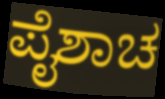
ಪೈಶಾಚ